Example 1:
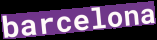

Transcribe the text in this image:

barcelona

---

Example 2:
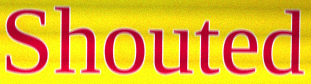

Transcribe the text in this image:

Shouted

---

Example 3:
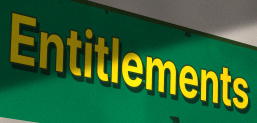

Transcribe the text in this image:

Entitlements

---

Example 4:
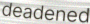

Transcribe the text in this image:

deadened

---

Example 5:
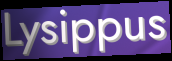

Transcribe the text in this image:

Lysippus